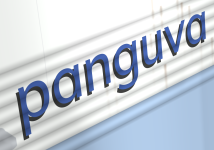
panguva